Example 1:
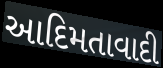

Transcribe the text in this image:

આદિમતાવાદી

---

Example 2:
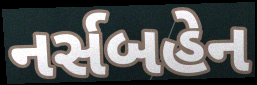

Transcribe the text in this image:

નર્સબહેન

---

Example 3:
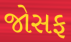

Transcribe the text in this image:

જોસફ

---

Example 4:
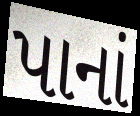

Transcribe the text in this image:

પાનાં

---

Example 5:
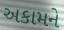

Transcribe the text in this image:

અકામને